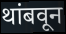
थांबवून